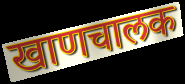
खाणचालक